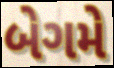
બેગમે